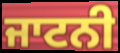
ਜਾਟਨੀ